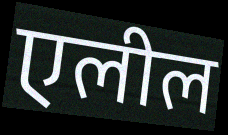
एलील